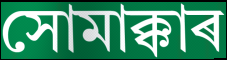
সোমাক্কাৰ